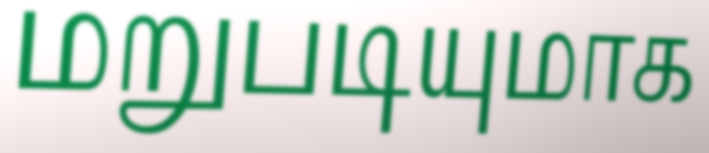
மறுபடியுமாக